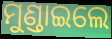
ମୁଣ୍ଡାଇଲେ